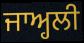
ਜਾਅ੍ਹਲੀ